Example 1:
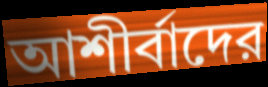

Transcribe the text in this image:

আশীর্বাদের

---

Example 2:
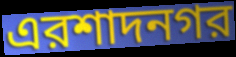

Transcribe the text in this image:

এরশাদনগর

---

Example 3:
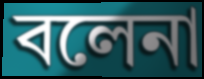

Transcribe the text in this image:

বলেনা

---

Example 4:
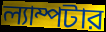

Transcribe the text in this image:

ল্যাম্পটার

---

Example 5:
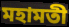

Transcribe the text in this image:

মহামতী